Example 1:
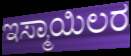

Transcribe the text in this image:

ಇಸ್ಮಾಯಿಲರ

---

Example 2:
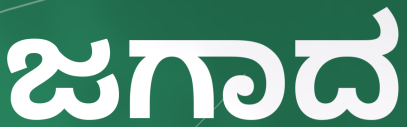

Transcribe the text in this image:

ಜಗಾದ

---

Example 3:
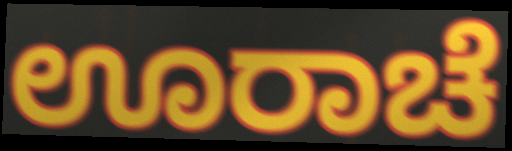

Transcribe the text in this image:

ಊರಾಚೆ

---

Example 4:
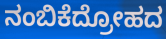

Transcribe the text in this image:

ನಂಬಿಕೆದ್ರೋಹದ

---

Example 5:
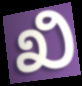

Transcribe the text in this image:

ಖಿ